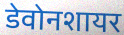
डेवोनशायर